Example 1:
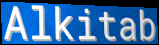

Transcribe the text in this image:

Alkitab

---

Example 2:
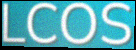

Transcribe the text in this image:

LCOS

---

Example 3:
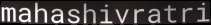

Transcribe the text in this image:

mahashivratri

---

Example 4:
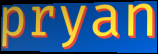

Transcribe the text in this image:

pryan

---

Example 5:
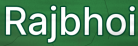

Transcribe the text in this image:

Rajbhoi